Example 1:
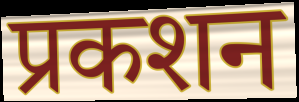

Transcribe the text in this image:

प्रकशन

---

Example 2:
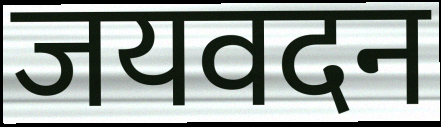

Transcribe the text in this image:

जयवदन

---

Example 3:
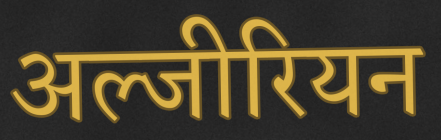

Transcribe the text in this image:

अल्जीरियन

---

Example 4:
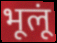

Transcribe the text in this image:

भूलूं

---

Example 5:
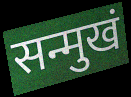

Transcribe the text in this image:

सन्मुखं